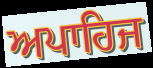
ਅਪਾਹਿਜ